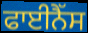
ਫਾਈਨੈੱਸ